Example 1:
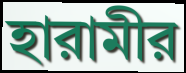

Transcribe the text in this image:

হারামীর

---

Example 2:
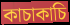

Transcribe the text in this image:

কাচাকাচি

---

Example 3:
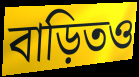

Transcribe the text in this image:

বাড়িতও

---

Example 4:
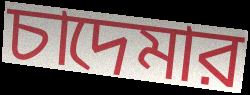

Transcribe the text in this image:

চাদেমার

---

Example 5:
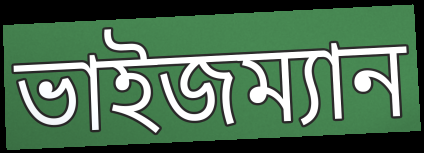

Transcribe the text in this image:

ভাইজম্যান